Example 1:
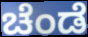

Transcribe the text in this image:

ಚೆಂಡೆ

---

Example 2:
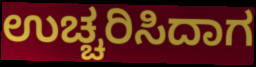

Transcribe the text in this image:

ಉಚ್ಚರಿಸಿದಾಗ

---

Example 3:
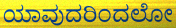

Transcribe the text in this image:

ಯಾವುದರಿಂದಲೋ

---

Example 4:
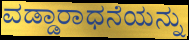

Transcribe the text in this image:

ವಡ್ಡಾರಾಧನೆಯನ್ನು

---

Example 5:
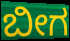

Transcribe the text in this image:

ಬೀಗ